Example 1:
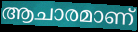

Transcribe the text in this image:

ആചാരമാണ്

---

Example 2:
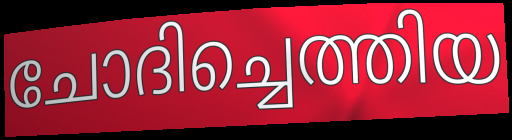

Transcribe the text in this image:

ചോദിച്ചെത്തിയ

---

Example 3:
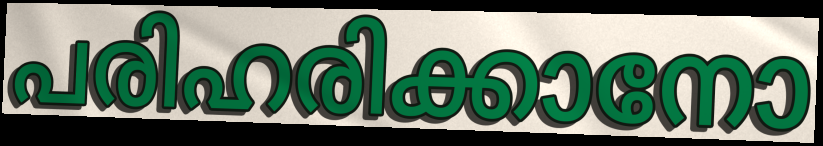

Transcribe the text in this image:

പരിഹരിക്കാനോ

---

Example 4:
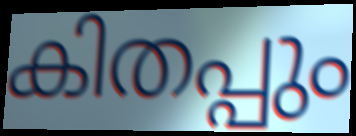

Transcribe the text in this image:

കിതപ്പും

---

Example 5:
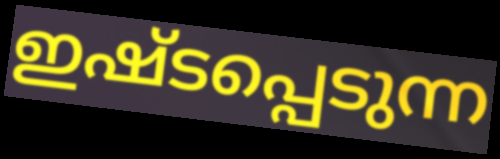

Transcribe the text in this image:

ഇഷ്ടപ്പെടുന്ന